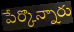
పేర్కొన్నారు